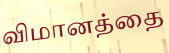
விமானத்தை